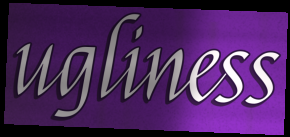
ugliness